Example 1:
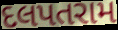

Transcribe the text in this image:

દલપતરામ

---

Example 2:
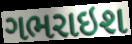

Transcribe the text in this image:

ગભરાઇશ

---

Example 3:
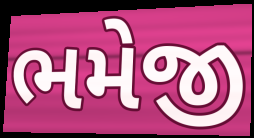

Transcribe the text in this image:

ભમેજી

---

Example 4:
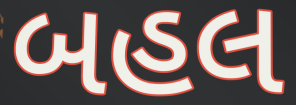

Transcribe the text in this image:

બહલ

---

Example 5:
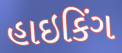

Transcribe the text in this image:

હાઇકિંગ